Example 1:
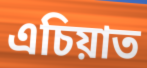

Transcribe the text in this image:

এচিয়াত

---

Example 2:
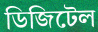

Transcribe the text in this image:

ডিজিটেল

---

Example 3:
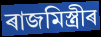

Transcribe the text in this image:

ৰাজমিস্ত্ৰীৰ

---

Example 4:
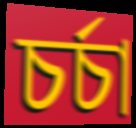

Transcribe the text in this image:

চৰ্চা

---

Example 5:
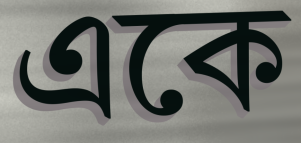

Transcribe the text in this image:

একে